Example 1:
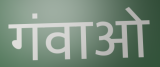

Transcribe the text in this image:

गंवाओ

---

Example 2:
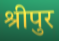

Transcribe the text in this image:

श्रीपुर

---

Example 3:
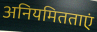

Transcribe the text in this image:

अनियमितताएं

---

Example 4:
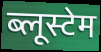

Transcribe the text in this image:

ब्लूस्टेम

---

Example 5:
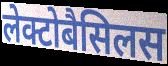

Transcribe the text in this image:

लेक्टोबैसिलस